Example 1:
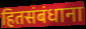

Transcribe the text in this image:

हितसंबंधाना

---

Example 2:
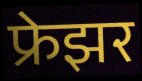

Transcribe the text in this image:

फ्रेझर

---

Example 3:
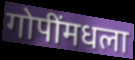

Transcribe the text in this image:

गोपींमधला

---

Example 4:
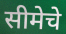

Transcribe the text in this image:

सीमेचे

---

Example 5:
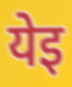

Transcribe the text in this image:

येइ